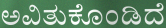
ಅವಿತುಕೊಂಡಿದೆ